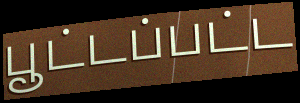
பூட்டப்பட்ட